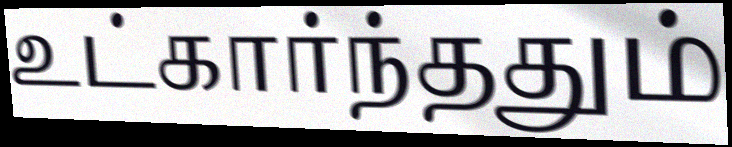
உட்கார்ந்ததும்